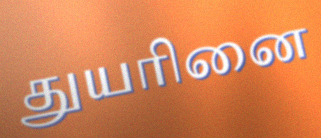
துயரினை